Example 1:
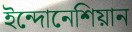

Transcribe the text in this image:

ইন্দোনেশিয়ান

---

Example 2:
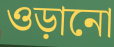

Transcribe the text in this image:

ওড়ানো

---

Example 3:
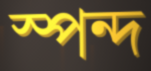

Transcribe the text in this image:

স্পন্দ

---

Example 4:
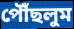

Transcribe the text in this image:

পৌঁছলুম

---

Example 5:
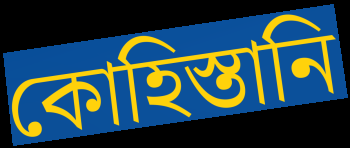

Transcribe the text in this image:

কোহিস্তানি